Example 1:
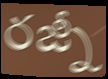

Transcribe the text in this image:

రజ్నీ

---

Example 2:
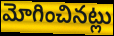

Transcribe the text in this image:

మోగించినట్లు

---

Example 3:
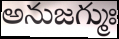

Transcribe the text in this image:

అనుజగ్ముః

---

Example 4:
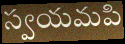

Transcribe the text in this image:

స్వయమపి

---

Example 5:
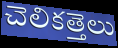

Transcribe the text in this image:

చెలికత్తెలు